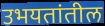
उभयतांतील